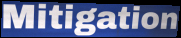
Mitigation